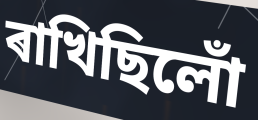
ৰাখিছিলোঁ